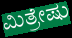
ಮಿತ್ರೇಷು